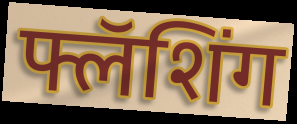
फ्लॅशिंग